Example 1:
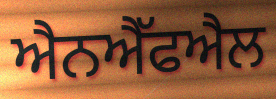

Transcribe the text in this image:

ਐਨਐੱਫਐਲ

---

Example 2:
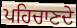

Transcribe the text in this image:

ਪਹਿਚਾਣਦੇ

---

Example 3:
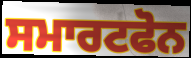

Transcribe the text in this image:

ਸਮਾਰਟਫੋਨ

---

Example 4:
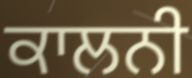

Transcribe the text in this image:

ਕਾਲਨੀ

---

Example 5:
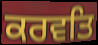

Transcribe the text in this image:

ਕਰਵਤਿ